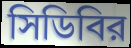
সিডিবির